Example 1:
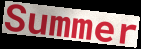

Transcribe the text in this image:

Summer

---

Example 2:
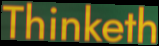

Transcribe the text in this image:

Thinketh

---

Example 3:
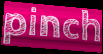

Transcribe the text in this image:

pinch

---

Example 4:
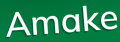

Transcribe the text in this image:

Amake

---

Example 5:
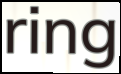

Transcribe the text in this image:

ring